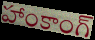
హాంకాంగ్